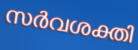
സർവശക്തി